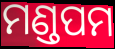
ମଣ୍ଡପମ